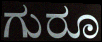
ಗುರೂ